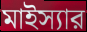
মাইস্যার